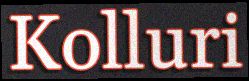
Kolluri